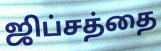
ஜிப்சத்தை